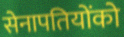
सेनापतियोंको